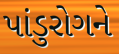
પાંડુરોગને